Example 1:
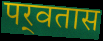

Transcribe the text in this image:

पर्वतास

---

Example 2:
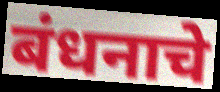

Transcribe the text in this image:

बंधनाचे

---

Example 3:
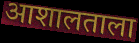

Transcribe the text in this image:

आशालताला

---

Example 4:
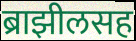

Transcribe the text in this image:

ब्राझीलसह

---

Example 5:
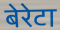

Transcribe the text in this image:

बेरेटा